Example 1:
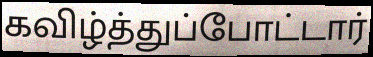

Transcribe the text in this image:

கவிழ்த்துப்போட்டார்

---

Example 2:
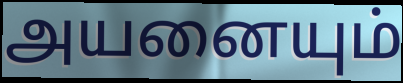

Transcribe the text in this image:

அயனையும்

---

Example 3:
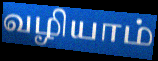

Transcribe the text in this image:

வழியாம்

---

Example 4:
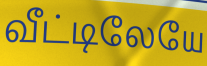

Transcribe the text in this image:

வீட்டிலேயே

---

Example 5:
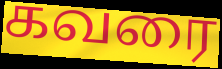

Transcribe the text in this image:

கவரை